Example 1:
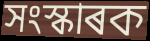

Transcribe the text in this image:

সংস্কাৰক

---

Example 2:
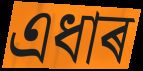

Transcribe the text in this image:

এধাৰ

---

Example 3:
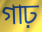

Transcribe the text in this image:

গাঢ়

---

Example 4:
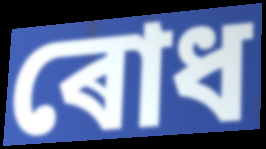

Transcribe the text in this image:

ৰোধ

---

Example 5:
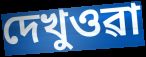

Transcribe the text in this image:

দেখুওৱা